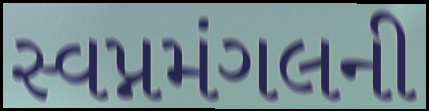
સ્વપ્નમંગલની